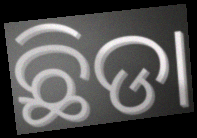
ଛିଡା